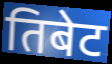
तिबेट